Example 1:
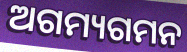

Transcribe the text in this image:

ଅଗମ୍ୟଗମନ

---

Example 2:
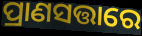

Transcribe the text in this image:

ପ୍ରାଣସତ୍ତାରେ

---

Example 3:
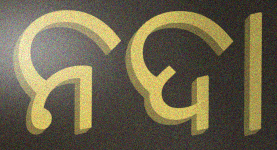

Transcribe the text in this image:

ନଦା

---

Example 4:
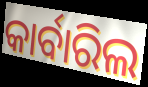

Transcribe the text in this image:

କାର୍ବାରିଲ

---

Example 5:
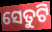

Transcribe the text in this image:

ସେତୁଟି